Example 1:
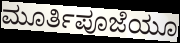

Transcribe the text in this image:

ಮೂರ್ತಿಪೂಜೆಯೂ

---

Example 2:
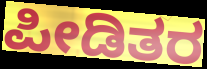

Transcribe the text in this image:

ಪೀಡಿತರ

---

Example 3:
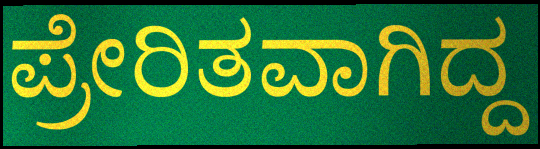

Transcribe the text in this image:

ಪ್ರೇರಿತವಾಗಿದ್ದ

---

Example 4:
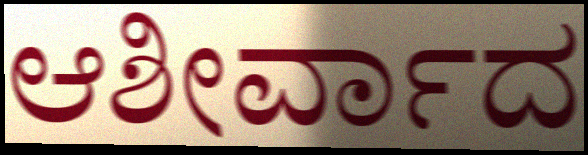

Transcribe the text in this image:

ಆಶೀರ್ವಾದ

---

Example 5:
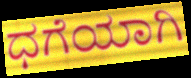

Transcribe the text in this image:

ಧಗೆಯಾಗಿ